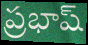
ప్రభాష్